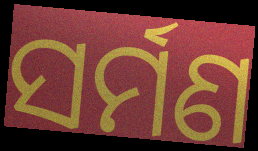
ସର୍ମଣ